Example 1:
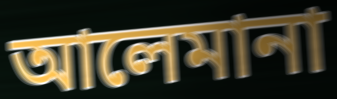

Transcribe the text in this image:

আলেমানা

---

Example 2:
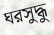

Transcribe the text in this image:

ঘরসুদ্ধু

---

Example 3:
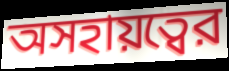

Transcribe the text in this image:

অসহায়ত্বের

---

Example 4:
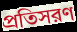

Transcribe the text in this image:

প্রতিসরণ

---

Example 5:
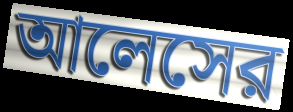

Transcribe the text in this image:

আলেসের